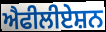
ਐਫੀਲੀਏਸ਼ਨ